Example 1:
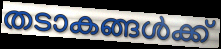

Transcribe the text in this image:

തടാകങ്ങൾക്ക്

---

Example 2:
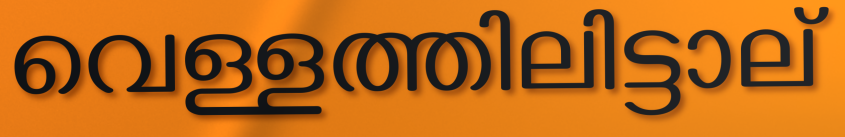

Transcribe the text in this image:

വെള്ളത്തിലിട്ടാല്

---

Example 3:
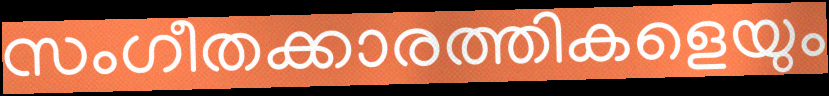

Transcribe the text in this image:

സംഗീതക്കാരത്തികളെയും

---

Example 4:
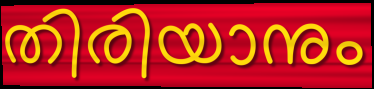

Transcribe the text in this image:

തിരിയാനും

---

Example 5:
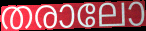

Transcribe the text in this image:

തരാലോ